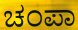
ಚಂಪಾ